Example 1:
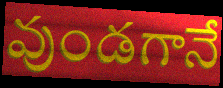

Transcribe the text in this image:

వుండగానే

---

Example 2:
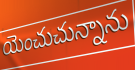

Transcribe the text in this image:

యెంచుచున్నాను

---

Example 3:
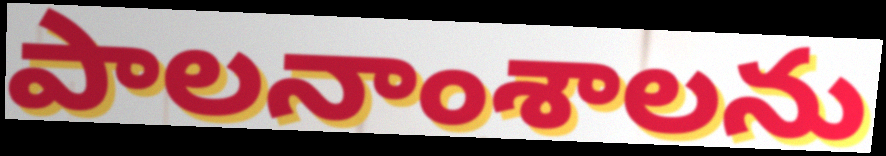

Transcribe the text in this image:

పాలనాంశాలను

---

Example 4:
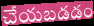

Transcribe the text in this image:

చేయబడడం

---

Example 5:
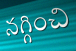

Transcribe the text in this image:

నగ్గించి